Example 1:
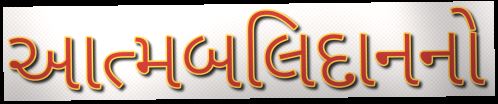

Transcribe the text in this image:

આત્મબલિદાનનો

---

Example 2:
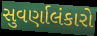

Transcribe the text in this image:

સુવર્ણાલંકારો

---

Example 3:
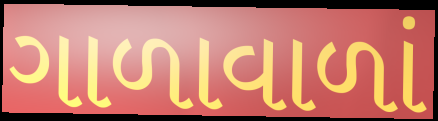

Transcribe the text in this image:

ગાળાવાળાં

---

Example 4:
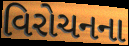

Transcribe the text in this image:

વિરોચનના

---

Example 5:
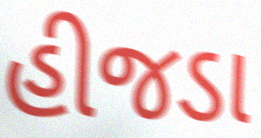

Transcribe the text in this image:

હીજડા